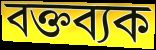
বক্তব্যক